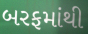
બરફમાંથી